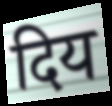
दिय